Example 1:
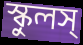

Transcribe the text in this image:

স্কুলস্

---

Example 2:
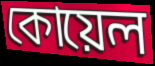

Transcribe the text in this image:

কোয়েল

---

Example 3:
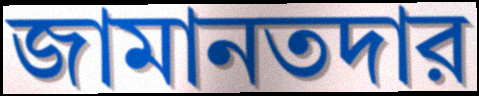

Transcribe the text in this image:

জামানতদার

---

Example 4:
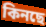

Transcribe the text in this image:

কিনছে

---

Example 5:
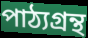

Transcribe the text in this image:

পাঠ্যগ্রন্থ